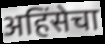
अहिंसेचा